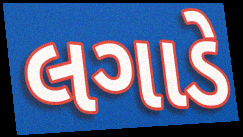
લગાડે